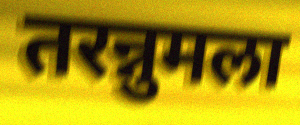
तरन्नुमला